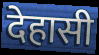
देहासी